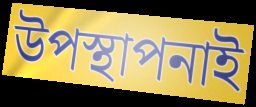
উপস্থাপনাই